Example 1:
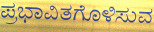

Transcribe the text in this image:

ಪ್ರಭಾವಿತಗೊಳಿಸುವ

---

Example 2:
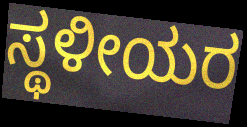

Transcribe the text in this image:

ಸ್ಥಳೀಯರ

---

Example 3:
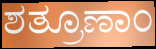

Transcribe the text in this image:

ಶತ್ರೂಣಾಂ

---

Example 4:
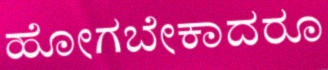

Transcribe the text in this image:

ಹೋಗಬೇಕಾದರೂ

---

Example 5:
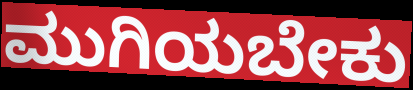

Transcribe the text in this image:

ಮುಗಿಯಬೇಕು